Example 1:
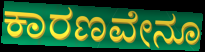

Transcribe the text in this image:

ಕಾರಣವೇನೂ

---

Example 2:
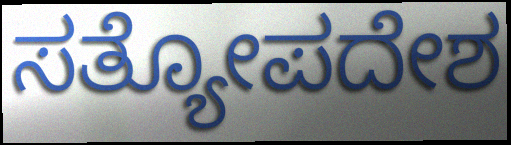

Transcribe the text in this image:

ಸತ್ಯೋಪದೇಶ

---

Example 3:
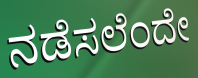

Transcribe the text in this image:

ನಡೆಸಲೆಂದೇ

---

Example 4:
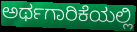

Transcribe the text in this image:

ಅರ್ಥಗಾರಿಕೆಯಲ್ಲಿ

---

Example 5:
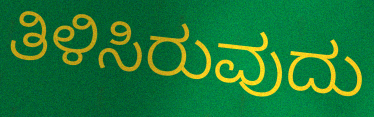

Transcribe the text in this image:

ತಿಳಿಸಿರುವುದು